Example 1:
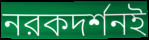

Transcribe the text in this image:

নরকদর্শনই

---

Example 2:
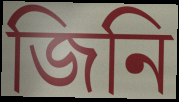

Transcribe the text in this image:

জিনি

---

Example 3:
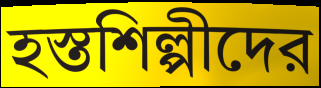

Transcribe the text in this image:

হস্তশিল্পীদের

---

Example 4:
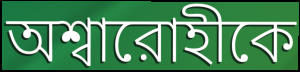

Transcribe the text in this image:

অশ্বারোহীকে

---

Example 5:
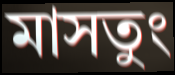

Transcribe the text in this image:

মাসতুং